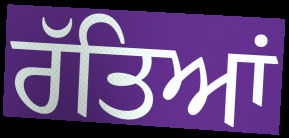
ਰੱਤਿਆਂ